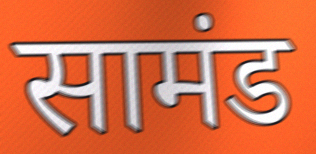
सामंड